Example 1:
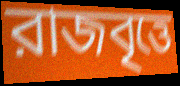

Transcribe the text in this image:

রাজবৃত্তে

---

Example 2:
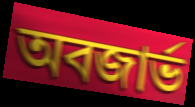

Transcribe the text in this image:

অবজার্ভ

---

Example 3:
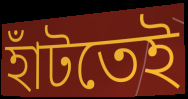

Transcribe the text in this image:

হাঁটতেই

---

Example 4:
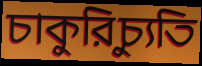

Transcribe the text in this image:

চাকুরিচ্যুতি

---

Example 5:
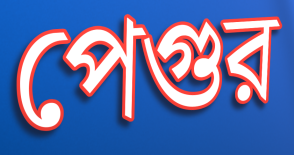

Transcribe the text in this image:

পেগুর